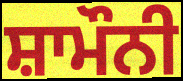
ਸ਼ਾਮੌਨੀ